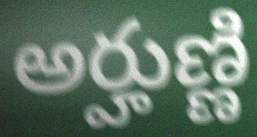
అర్హుణ్ణి